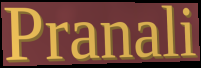
Pranali